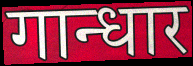
गान्धार